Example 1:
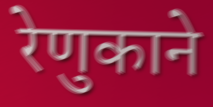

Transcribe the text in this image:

रेणुकाने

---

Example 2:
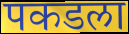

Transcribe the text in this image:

पकडला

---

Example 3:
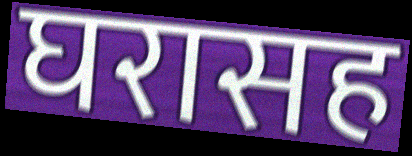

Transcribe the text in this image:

घरासह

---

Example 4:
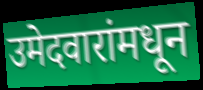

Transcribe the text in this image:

उमेदवारांमधून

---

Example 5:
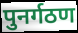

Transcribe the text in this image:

पुनर्गठण